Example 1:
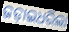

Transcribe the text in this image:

ଜଡ଼ାଇଧରିଲା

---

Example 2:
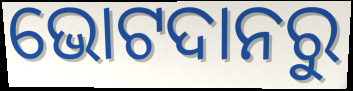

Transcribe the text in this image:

ଭୋଟଦାନରୁ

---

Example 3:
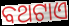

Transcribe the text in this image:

ବଥଟାଏ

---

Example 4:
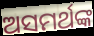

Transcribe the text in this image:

ଅସମର୍ଥଙ୍କ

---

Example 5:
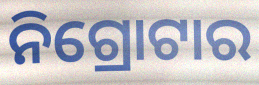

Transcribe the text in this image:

ନିଗ୍ରୋଟାର